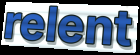
relent